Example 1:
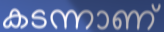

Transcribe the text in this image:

കടന്നാണ്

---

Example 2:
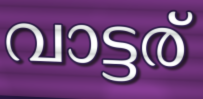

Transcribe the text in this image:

വാട്ടര്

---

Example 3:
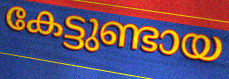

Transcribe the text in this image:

കേട്ടുണ്ടായ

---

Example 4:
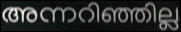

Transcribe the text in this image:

അന്നറിഞ്ഞില്ല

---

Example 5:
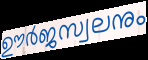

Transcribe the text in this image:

ഊർജസ്വലനും